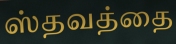
ஸ்தவத்தை